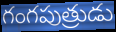
గంగపుత్రుడు